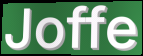
Joffe